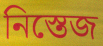
নিস্তেজ